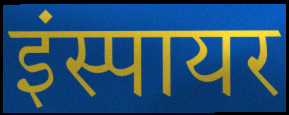
इंस्पायर